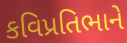
કવિપ્રતિભાને